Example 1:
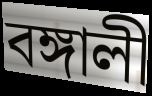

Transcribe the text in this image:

বঙ্গালী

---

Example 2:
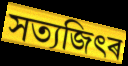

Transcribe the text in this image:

সত্যজিৎৰ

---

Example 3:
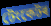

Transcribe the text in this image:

টেংকেটৰ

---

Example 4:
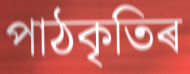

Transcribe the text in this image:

পাঠকৃতিৰ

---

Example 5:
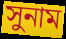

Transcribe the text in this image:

সুনাম